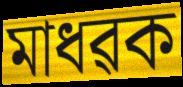
মাধৱক